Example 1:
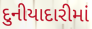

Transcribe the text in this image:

દુનીયાદારીમાં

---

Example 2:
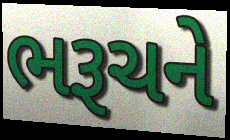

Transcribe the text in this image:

ભરૂચને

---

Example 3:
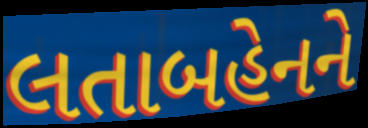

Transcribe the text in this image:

લતાબહેનને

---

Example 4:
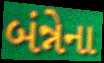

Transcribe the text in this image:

બંન્નેના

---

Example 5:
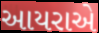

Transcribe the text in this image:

આયરાએ